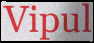
Vipul